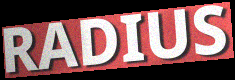
RADIUS